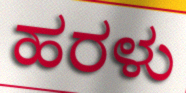
ಹರಳು